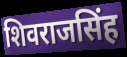
शिवराजसिंह